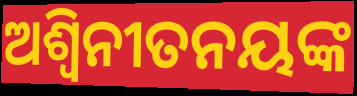
ଅଶ୍ୱିନୀତନୟଙ୍କ